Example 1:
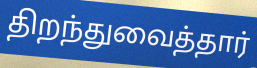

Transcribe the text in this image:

திறந்துவைத்தார்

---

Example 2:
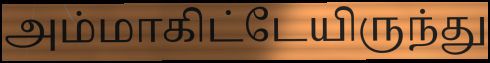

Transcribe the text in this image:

அம்மாகிட்டேயிருந்து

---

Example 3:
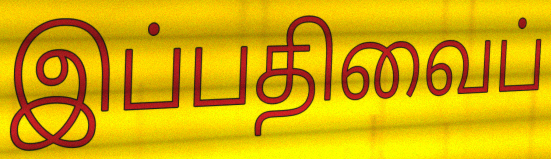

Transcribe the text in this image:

இப்பதிவைப்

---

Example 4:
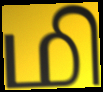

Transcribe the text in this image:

மி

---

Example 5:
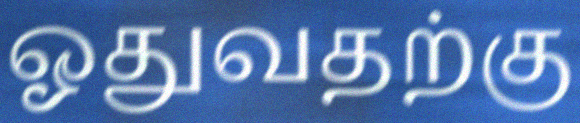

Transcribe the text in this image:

ஓதுவதற்கு